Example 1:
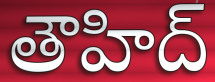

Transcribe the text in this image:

తౌహిద్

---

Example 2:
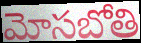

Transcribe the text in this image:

మోసబోతి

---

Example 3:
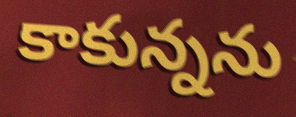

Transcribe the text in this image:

కాకున్నను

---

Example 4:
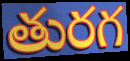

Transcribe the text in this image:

తురగ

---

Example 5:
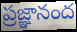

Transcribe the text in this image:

ప్రజ్ఞానంద